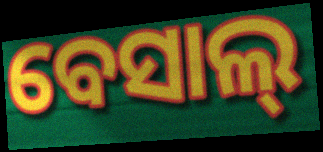
ବେସାଲ୍